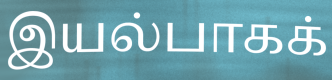
இயல்பாகக்